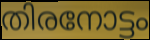
തിരനോട്ടം